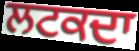
ਲਟਕਦਾ